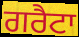
ਗਰੈਟਾ